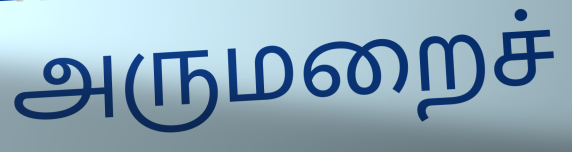
அருமறைச்